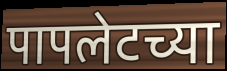
पापलेटच्या